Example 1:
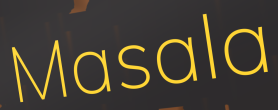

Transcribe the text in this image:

Masala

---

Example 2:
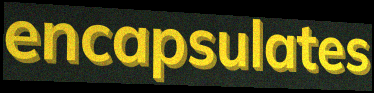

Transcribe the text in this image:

encapsulates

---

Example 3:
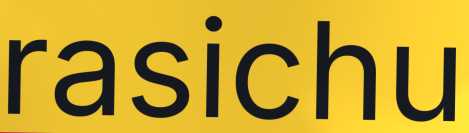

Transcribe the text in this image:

rasichu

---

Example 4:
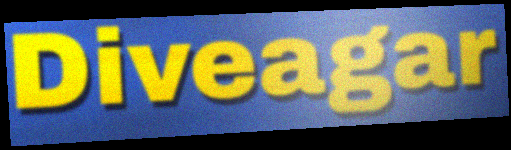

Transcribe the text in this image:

Diveagar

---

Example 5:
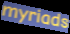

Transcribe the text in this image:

myriads